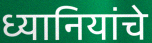
ध्यानियांचे